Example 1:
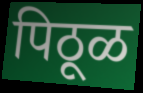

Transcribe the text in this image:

पिठूळ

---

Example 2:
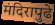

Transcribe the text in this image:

मंदिरापुढे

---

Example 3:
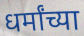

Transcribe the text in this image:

धर्मांच्या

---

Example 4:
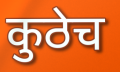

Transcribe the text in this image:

कुठेच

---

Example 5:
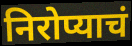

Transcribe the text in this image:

निरोप्याचं